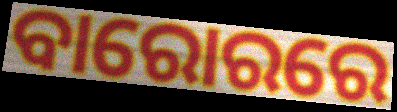
ବାରୋରରେ